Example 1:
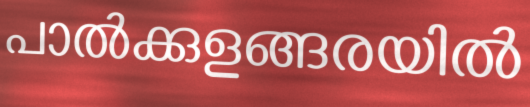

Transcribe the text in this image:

പാൽക്കുളങ്ങരയിൽ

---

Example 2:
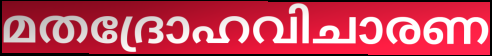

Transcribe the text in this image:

മതദ്രോഹവിചാരണ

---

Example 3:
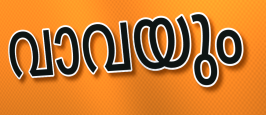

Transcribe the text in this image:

വാവയും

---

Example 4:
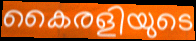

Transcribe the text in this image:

കൈരളിയുടെ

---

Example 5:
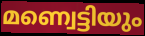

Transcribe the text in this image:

മണ്വെട്ടിയും